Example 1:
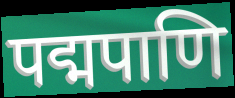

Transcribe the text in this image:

पद्मपाणि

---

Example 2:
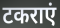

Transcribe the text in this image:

टकराएं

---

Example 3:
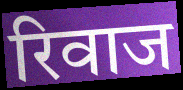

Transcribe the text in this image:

रिवाज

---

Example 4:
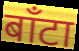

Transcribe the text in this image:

बाँटा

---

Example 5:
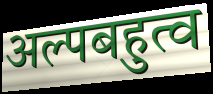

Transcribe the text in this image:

अल्पबहुत्व